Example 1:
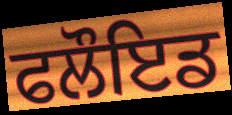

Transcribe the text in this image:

ਫਲੌਇਡ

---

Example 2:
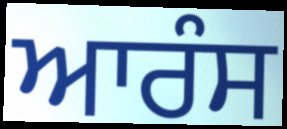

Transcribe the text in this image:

ਆਰੰਸ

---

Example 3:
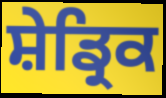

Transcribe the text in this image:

ਸ਼ੇਡ੍ਰਿਕ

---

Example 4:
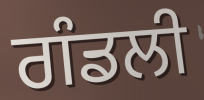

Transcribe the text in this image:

ਗੰਡਲੀ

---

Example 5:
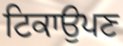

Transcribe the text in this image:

ਟਿਕਾਉਪਣ